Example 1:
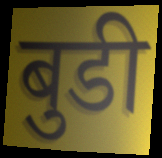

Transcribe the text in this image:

बुडी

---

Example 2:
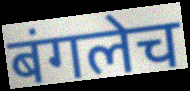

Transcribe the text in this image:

बंगलेच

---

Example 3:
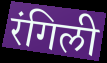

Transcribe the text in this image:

रंगिली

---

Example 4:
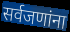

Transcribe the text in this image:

सर्वजणांना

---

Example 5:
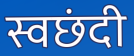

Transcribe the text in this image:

स्वछंदी